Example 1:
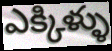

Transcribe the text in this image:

ఎక్కిళ్ళు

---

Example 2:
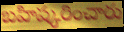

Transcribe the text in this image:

బహిష్కరించారు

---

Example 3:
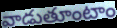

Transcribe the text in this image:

వాడుతూంటాం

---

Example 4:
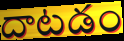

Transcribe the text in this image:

దాటడం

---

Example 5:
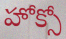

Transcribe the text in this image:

హోక్సో